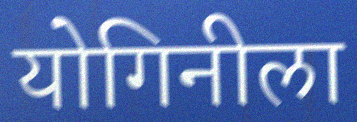
योगिनीला